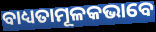
ବାଧ୍ୟତାମୂଳକଭାବେ